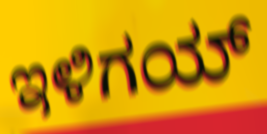
ಇಳಿಗಯ್